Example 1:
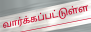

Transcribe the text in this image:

வார்க்கப்பட்டுள்ள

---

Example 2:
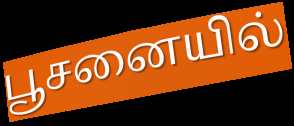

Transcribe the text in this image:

பூசனையில்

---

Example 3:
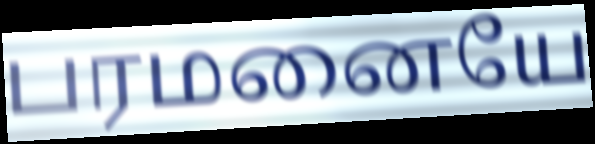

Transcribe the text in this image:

பரமனையே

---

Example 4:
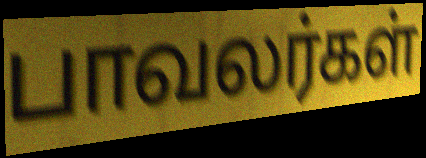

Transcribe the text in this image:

பாவலர்கள்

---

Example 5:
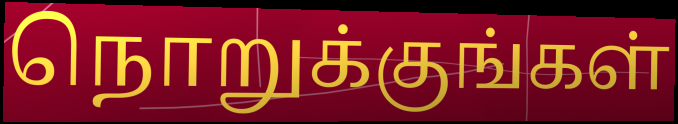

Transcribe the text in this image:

நொறுக்குங்கள்